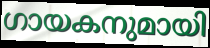
ഗായകനുമായി